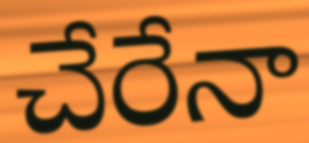
చేరేనా